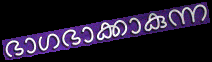
ഭാഗഭാക്കാകുന്ന